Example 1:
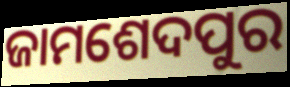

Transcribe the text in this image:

ଜାମଶେଦପୁର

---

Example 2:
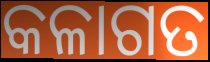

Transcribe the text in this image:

କଳାଗତ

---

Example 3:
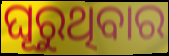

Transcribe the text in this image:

ଘୂରୁଥିବାର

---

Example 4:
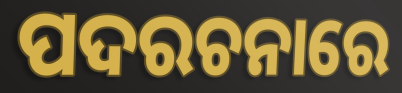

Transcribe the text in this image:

ପଦରଚନାରେ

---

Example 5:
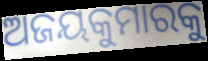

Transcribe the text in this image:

ଅଜୟକୁମାରକୁ